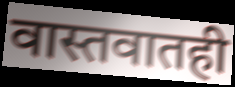
वास्तवातही